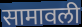
सामावली